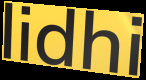
lidhi